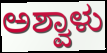
ಅಶ್ವಾಳು